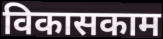
विकासकाम